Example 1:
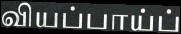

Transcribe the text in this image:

வியப்பாய்ப்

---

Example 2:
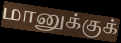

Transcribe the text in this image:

மானுக்குக்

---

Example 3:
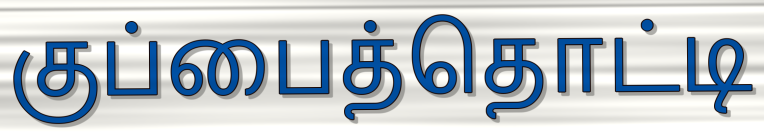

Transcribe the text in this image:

குப்பைத்தொட்டி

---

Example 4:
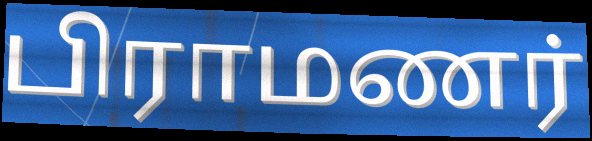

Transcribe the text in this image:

பிராமணர்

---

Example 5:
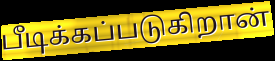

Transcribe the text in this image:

பீடிக்கப்படுகிறான்